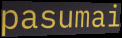
pasumai